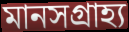
মানসগ্রাহ্য